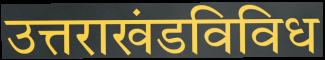
उत्तराखंडविविध